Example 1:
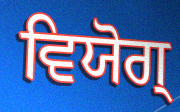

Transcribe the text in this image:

ਵਿਯੋਗ੍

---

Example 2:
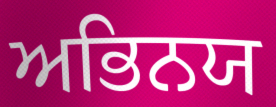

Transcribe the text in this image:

ਅਭਿਨਯ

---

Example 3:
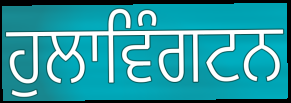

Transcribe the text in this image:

ਹੁਲਾਵਿੰਗਟਨ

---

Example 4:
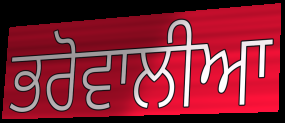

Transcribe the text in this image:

ਭਰੋਵਾਲੀਆ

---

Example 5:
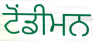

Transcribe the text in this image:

ਟੋਂਡੀਮਨ